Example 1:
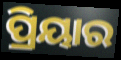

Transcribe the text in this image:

ପ୍ରିୟାର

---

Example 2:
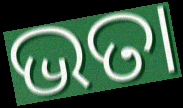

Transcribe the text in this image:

ଭତା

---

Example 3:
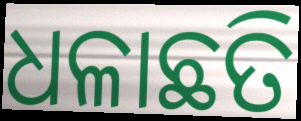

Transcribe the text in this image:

ଧଳାଛତି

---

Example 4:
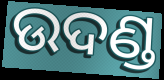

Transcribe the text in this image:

ଉଦଣ୍ଡ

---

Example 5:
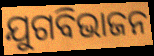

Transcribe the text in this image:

ଯୁଗବିଭାଜନ